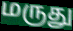
மருது